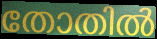
തോതിൽ